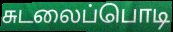
சுடலைப்பொடி